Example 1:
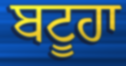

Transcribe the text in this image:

ਬਟੂਹਾ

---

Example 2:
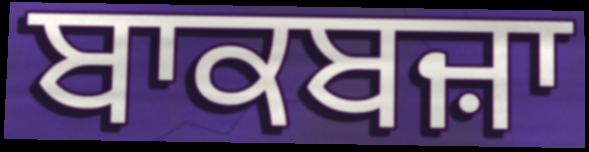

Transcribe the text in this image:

ਬਾਕਬਜ਼ਾ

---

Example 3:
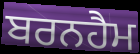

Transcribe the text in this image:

ਬਰਨਹੈਮ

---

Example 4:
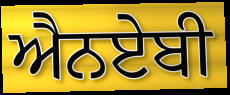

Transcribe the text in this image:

ਐਨਏਬੀ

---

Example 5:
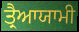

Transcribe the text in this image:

ਤ੍ਰੈਆਯਾਮੀ